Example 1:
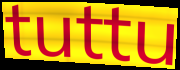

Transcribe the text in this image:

tuttu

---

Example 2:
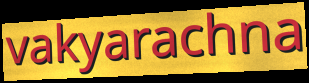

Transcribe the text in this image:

vakyarachna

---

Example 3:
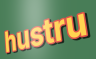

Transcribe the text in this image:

hustru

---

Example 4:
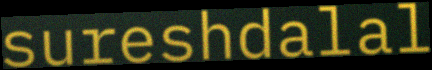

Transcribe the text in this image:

sureshdalal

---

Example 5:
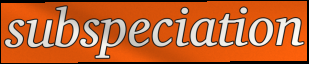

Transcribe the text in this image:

subspeciation